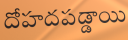
దోహదపడ్డాయి